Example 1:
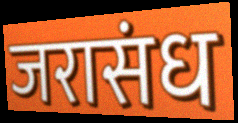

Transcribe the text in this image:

जरासंध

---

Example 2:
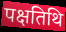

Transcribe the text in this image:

पक्षतिथि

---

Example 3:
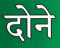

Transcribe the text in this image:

दोने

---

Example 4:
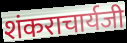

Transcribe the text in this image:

शंकराचार्यजी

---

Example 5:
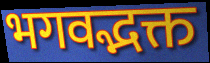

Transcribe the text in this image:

भगवद्भक्त